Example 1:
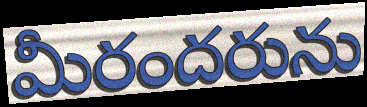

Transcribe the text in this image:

మీరందరును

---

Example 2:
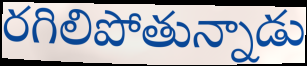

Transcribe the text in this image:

రగిలిపోతున్నాడు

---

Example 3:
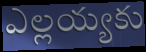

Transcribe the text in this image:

ఎల్లయ్యకు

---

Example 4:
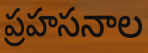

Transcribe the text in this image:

ప్రహసనాల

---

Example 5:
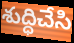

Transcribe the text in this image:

శుద్ధిచేసి